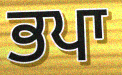
ਭਪਾ